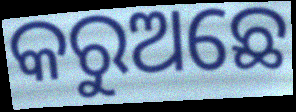
କରୁଅଛେ